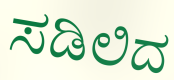
ಸಡಿಲಿದ